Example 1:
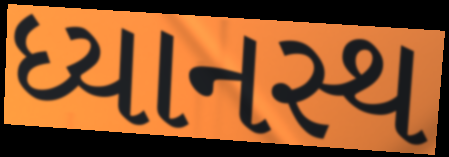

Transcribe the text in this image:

ધ્યાનસ્થ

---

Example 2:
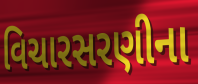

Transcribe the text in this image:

વિચારસરણીના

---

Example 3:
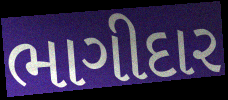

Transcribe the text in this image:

ભાગીદાર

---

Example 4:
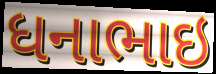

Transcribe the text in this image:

ધનાભાઇ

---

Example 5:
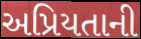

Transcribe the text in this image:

અપ્રિયતાની